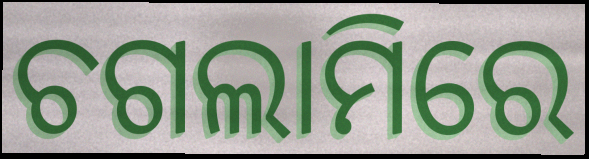
ଚଗଲାମିରେ